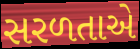
સરળતાએ